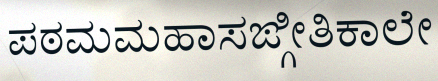
ಪಠಮಮಹಾಸಙ್ಗೀತಿಕಾಲೇ